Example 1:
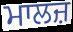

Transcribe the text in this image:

ਮਾਲਜ਼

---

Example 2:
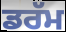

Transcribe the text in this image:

ਡਰੱਮ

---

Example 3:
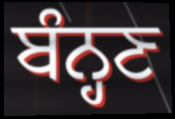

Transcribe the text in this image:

ਬੰਨ੍ਹਣ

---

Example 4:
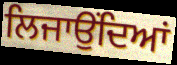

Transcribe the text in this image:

ਲਿਜਾਉਂਦਿਆਂ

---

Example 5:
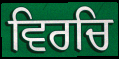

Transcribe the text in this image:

ਵਿਰਚਿ